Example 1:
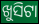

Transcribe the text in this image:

ଖୁସିଟା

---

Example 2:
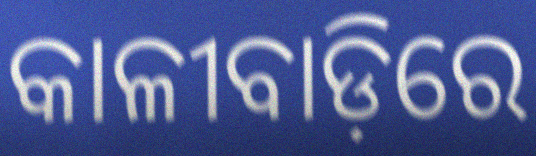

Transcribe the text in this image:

କାଳୀବାଡ଼ିରେ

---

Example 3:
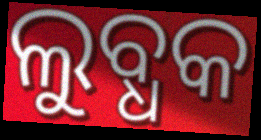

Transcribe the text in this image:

ଲୁବ୍ଧକ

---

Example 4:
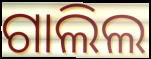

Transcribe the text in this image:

ଗାଲିଲ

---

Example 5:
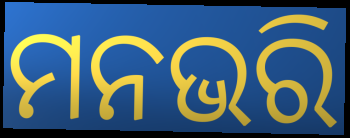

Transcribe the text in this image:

ମନଭରି